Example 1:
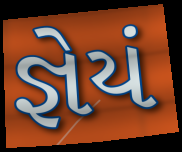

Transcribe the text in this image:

જ્ઞેયં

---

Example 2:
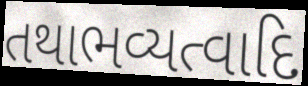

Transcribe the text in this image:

તથાભવ્યત્વાદિ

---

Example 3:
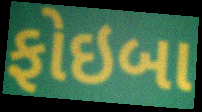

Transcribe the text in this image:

ફોઇબા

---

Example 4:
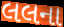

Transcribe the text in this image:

લલના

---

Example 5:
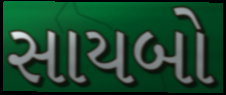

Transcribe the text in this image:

સાયબો